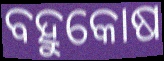
ବହୁକୋଷ